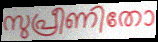
സുപ്രീണിതോ